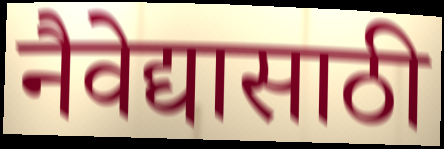
नैवेद्यासाठी